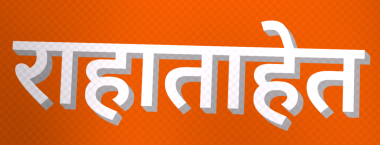
राहाताहेत